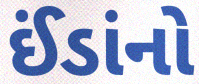
ઈંડાંનો